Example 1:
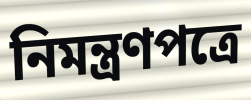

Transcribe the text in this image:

নিমন্ত্রণপত্রে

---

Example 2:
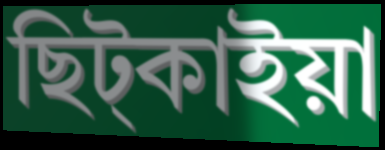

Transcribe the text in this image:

ছিট্কাইয়া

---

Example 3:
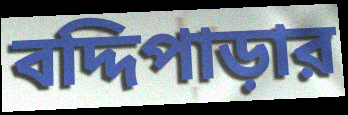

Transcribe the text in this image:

বদ্দিপাড়ার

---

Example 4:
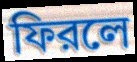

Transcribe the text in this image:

ফিরলে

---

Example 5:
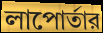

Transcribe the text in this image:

লাপোর্তার